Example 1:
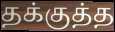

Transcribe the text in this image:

தக்குத்த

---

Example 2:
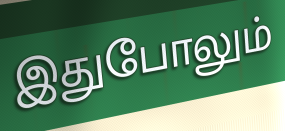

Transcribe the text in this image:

இதுபோலும்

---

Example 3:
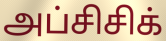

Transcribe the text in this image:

அப்சிசிக்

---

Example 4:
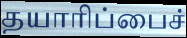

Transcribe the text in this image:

தயாரிப்பைச்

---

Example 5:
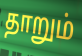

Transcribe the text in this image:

தாறும்